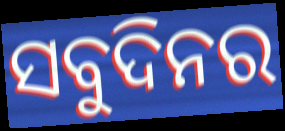
ସବୁଦିନର